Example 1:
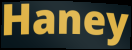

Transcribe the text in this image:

Haney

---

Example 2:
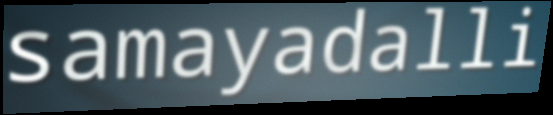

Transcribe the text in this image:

samayadalli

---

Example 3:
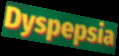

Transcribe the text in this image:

Dyspepsia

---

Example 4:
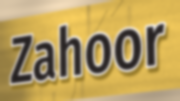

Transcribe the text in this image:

Zahoor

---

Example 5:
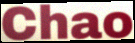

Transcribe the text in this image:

Chao